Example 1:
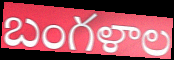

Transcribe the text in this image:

బంగళాల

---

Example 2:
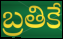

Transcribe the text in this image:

బ్రతికే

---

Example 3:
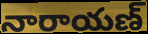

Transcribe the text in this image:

నారాయణ్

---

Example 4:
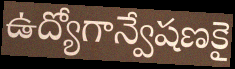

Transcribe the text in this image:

ఉద్యోగాన్వేషణకై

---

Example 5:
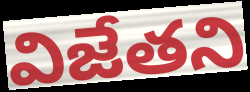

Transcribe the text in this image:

విజేతని